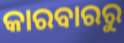
କାରବାରରୁ